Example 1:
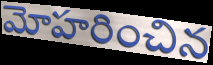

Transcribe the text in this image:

మోహరించిన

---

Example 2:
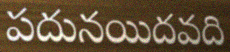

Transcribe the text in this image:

పదునయిదవది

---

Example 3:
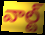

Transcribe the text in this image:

వాల్ట్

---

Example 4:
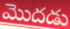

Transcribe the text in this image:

మొదడు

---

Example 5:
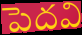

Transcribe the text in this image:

పెదవి